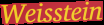
Weisstein